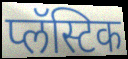
प्लॅस्टिक